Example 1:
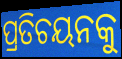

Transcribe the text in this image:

ପ୍ରତିଚୟନକୁ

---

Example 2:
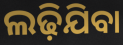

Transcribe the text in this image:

ଲଢ଼ିଯିବା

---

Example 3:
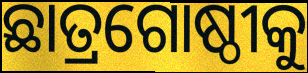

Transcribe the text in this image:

ଛାତ୍ରଗୋଷ୍ଠୀକୁ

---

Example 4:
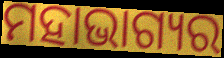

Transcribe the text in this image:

ମହାଭାଗ୍ୟର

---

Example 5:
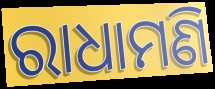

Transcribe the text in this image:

ରାଧାମଣି